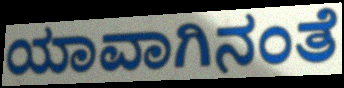
ಯಾವಾಗಿನಂತೆ